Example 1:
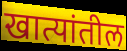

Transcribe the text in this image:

खात्यांतील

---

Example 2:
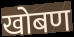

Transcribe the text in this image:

खोबण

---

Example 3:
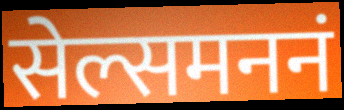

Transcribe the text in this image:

सेल्समननं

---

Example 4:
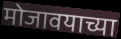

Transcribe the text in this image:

मोजावयाच्या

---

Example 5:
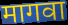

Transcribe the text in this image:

मागवा